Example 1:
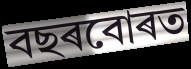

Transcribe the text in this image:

বছৰবোৰত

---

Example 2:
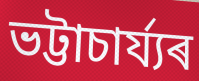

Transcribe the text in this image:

ভট্টাচাৰ্য্যৰ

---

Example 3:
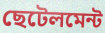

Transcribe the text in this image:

ছেটেলমেন্ট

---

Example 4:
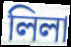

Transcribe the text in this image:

লিলা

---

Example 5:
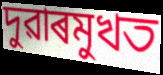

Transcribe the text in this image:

দুৱাৰমুখত